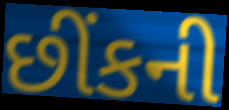
છીંકની